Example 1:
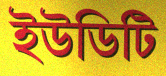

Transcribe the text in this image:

ইউডিটি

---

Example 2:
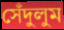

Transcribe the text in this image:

সেঁদুলুম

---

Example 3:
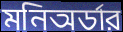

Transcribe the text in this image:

মনিঅর্ডার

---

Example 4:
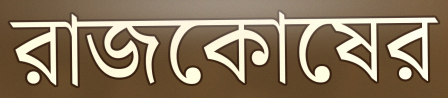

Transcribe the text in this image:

রাজকোষের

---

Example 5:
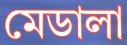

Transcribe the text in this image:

মেডালা